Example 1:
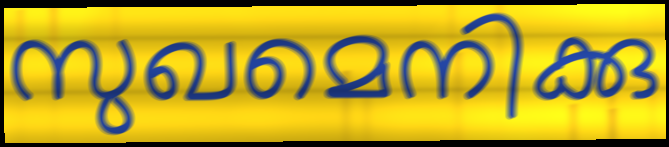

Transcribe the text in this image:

സുഖമെനിക്കു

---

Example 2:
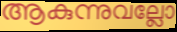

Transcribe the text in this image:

ആകുന്നുവല്ലോ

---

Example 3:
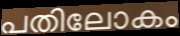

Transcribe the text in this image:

പതിലോകം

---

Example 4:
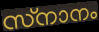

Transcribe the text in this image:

സ്‌നാനം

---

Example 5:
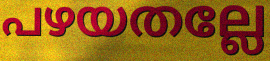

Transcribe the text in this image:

പഴയതല്ലേ